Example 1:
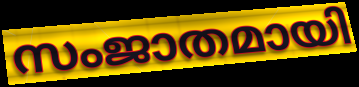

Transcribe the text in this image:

സംജാതമായി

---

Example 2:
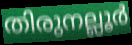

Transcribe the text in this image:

തിരുനല്ലൂർ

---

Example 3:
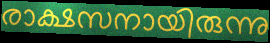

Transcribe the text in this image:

രാക്ഷസനായിരുന്നു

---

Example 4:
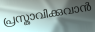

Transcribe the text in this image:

പ്രസ്താവിക്കുവാൻ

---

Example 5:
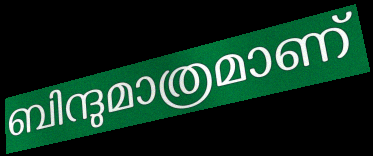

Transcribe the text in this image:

ബിന്ദുമാത്രമാണ്